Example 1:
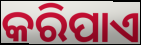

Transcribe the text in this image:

କରିପାଏ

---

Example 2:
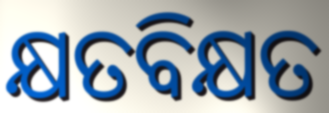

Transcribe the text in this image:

କ୍ଷତବିକ୍ଷତ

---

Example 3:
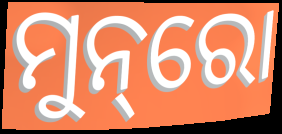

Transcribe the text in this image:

ମୁନ୍‌ରୋ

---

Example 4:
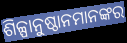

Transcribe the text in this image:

ଶିଳ୍ପାନୁଷ୍ଠାନମାନଙ୍କର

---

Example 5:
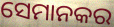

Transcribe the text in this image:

ସେମାନକର